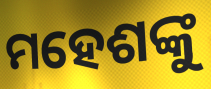
ମହେଶଙ୍କୁ